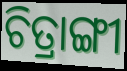
ଚିତ୍ରାଙ୍ଗୀ